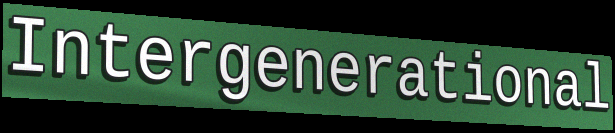
Intergenerational